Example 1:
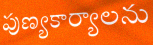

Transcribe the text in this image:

పుణ్యకార్యాలను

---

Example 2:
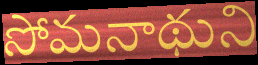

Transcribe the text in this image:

సోమనాథుని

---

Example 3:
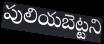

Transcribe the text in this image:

పులియబెట్టని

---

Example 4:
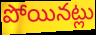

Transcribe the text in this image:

పోయినట్లు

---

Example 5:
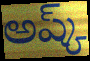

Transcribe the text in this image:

అష్క్